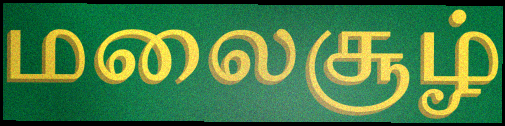
மலைசூழ்